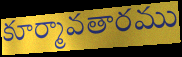
కూర్మావతారము